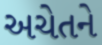
અચેતને